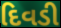
દિવડી